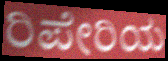
ರಿಪೇರಿಯ